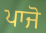
ਪਾਜੋ